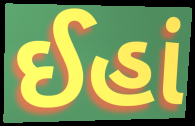
ઈહાં